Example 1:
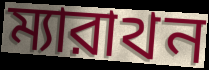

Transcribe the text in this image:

ম্যারাথন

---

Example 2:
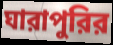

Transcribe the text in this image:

ঘারাপুরির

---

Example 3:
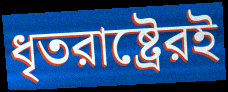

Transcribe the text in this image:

ধৃতরাষ্ট্রেরই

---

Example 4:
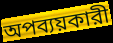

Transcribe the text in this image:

অপব্যয়কারী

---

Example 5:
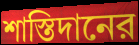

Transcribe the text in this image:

শাস্তিদানের